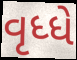
વૃધ્ધે